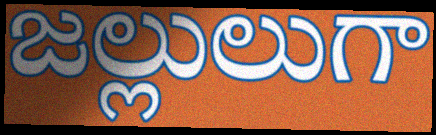
జల్లులుగా